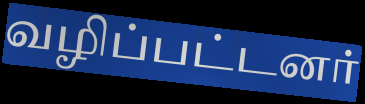
வழிப்பட்டனர்